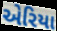
એરિયા